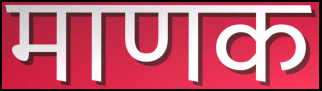
माणक